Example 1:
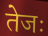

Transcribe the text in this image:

तेजः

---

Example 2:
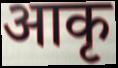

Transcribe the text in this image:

आकृ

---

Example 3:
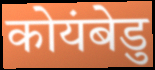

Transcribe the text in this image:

कोयंबेडु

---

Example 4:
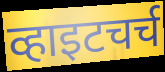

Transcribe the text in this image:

व्हाइटचर्च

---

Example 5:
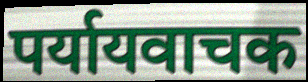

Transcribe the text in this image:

पर्यायवाचक